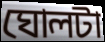
ঘোলটা